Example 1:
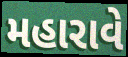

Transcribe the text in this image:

મહારાવે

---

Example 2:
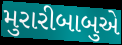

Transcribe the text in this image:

મુરારીબાબુએ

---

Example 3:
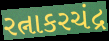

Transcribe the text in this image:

રત્નાકરચંદ્ર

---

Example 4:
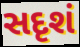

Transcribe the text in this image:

સદૃશં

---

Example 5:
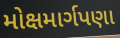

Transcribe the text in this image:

મોક્ષમાર્ગપણા